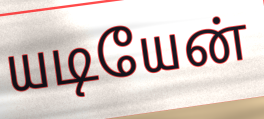
யடியேன்